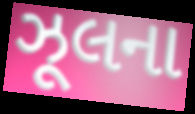
ઝૂલના